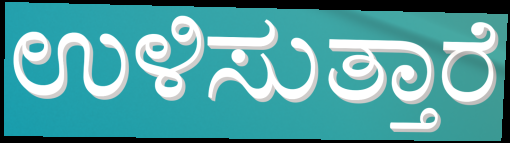
ಉಳಿಸುತ್ತಾರೆ